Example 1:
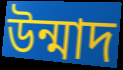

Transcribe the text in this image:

উন্মাদ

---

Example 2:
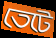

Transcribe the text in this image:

তেটে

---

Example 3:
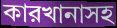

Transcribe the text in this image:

কারখানাসহ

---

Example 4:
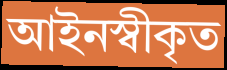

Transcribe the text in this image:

আইনস্বীকৃত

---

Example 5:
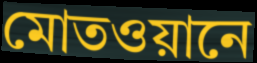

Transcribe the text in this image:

মোতওয়ানে